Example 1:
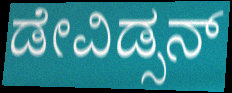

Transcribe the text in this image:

ಡೇವಿಡ್ಸನ್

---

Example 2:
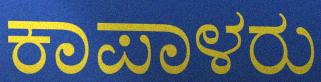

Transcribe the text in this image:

ಕಾಪಾಳರು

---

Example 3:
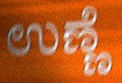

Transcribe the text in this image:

ಉಣ್ಣೆ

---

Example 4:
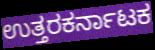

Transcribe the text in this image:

ಉತ್ತರಕರ್ನಾಟಕ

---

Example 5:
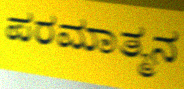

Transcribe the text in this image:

ಪರಮಾತ್ಮನ